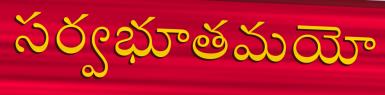
సర్వభూతమయో